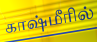
காஷ்மீரில்